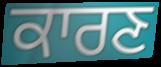
ਕਾਰਣ